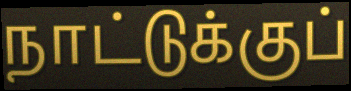
நாட்டுக்குப்